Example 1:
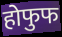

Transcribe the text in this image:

होफुफ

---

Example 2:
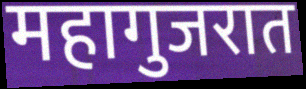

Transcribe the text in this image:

महागुजरात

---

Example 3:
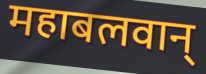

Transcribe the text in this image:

महाबलवान्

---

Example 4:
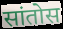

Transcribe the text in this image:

सांतोस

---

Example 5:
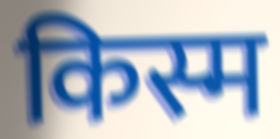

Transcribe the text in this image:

किस्‍म